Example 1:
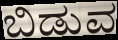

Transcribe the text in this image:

ಬಿಡುವ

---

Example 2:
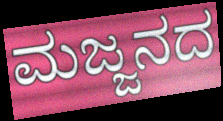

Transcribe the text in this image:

ಮಜ್ಜನದ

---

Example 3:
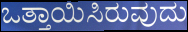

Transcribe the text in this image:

ಒತ್ತಾಯಿಸಿರುವುದು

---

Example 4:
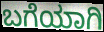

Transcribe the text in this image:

ಬಗೆಯಾಗಿ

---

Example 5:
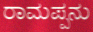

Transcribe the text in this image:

ರಾಮಪ್ಪನು